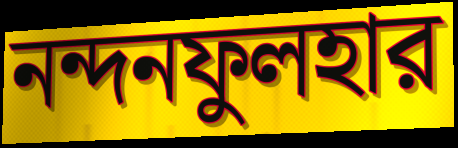
নন্দনফুলহার